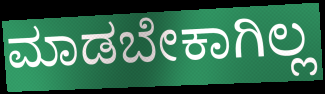
ಮಾಡಬೇಕಾಗಿಲ್ಲ